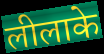
लीलाके